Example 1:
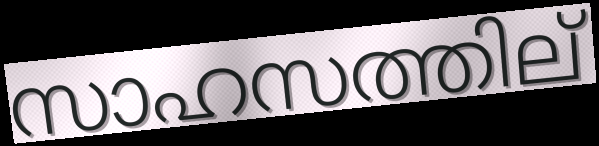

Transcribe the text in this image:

സാഹസത്തില്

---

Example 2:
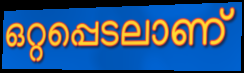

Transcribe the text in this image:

ഒറ്റപ്പെടലാണ്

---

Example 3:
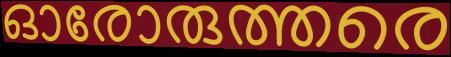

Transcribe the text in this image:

ഓരോരുത്തരെ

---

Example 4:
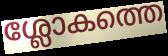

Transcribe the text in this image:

ശ്ലോകത്തെ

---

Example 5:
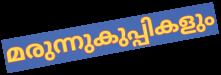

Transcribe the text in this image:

മരുന്നുകുപ്പികളും